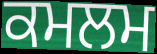
ਕਮਲਮ